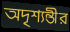
অদৃশ্যন্তীর